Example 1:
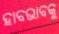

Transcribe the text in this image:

ହାବଭାବକୁ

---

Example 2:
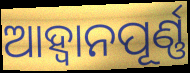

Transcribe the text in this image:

ଆହ୍ବାନପୂର୍ଣ୍ଣ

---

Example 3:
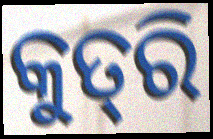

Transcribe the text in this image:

କୁତ୍‌ରି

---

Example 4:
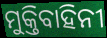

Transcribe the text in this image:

ମୁକ୍ତିବାହିନୀ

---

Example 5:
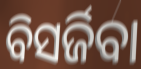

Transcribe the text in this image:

ବିସର୍ଜିବା